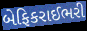
બેફિકરાઈભરી